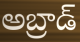
అబ్రాడ్